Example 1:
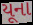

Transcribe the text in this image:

યૂના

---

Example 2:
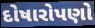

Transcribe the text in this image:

દોષારોપણો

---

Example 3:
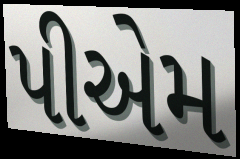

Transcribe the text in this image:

પીએમ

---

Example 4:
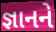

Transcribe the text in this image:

જ્ઞાનને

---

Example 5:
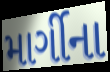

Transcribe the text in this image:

માર્ગીના